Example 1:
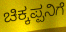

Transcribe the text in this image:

ಚಿಕ್ಕಪ್ಪನಿಗೆ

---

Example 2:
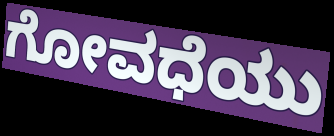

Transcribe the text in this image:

ಗೋವಧೆಯು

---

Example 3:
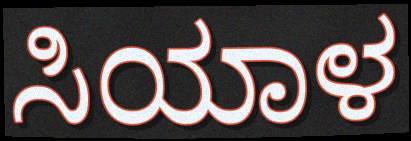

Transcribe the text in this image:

ಸಿಯಾಳ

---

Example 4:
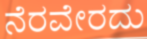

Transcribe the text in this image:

ನೆರವೇರದು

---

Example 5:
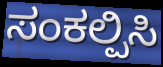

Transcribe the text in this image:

ಸಂಕಲ್ಪಿಸಿ